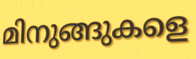
മിനുങ്ങുകളെ